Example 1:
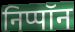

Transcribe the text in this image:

निप्पॉन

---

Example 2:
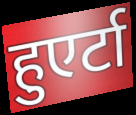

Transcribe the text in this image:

हुएर्टा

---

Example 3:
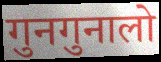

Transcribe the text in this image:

गुनगुनालो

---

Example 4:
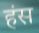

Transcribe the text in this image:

हंस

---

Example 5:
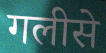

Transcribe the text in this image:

गलीसे